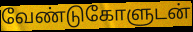
வேண்டுகோளுடன்